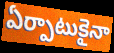
ఏర్పాటుకైనా